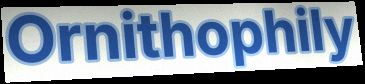
Ornithophily